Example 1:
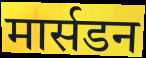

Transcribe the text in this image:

मार्सडन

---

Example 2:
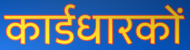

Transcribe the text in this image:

कार्डधारकों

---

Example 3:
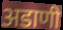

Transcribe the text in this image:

अडाणी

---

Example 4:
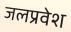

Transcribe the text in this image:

जलप्रवेश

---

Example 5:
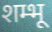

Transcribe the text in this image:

शम्भू